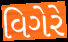
વિગેરે